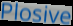
Plosive